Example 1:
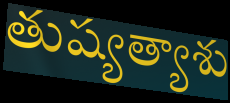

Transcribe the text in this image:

తుష్యత్యాశు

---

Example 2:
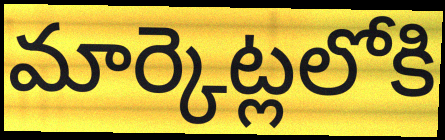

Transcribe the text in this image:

మార్కెట్లలోకి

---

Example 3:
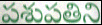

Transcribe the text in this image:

పశుపతిని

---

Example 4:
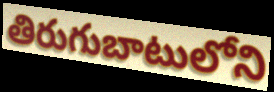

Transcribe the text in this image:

తిరుగుబాటులోని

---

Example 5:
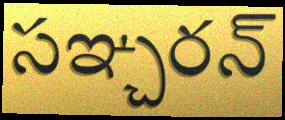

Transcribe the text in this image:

సఞ్చరన్